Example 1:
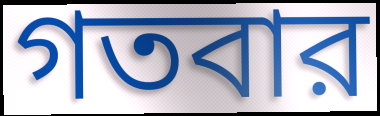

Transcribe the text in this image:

গতবার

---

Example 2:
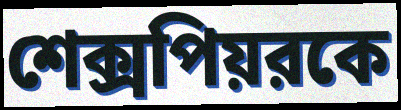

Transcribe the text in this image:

শেক্সপিয়রকে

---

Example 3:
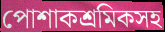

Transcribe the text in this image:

পোশাকশ্রমিকসহ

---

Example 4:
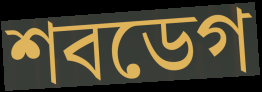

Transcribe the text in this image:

শবডেগ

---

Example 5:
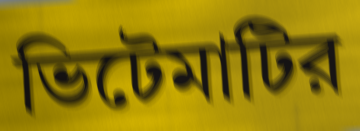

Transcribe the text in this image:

ভিটেমাটির